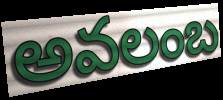
అవలంబ